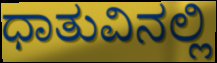
ಧಾತುವಿನಲ್ಲಿ